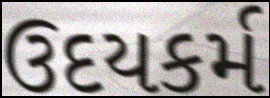
ઉદયકર્મ